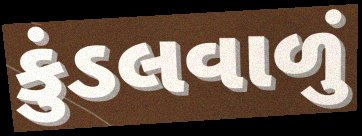
કુંડલવાળું